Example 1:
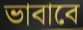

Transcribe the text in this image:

ভাবাবে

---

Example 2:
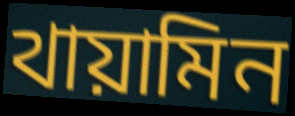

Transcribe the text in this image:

থায়ামিন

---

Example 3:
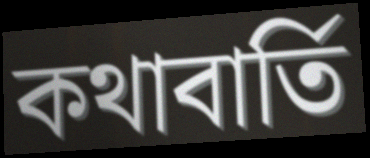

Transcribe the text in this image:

কথাবার্তি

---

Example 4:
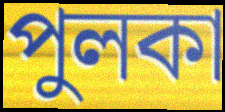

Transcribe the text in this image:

পুলকা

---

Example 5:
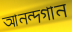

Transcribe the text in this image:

আনন্দগান